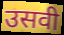
उसवी